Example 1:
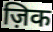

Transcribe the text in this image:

ज़िक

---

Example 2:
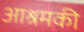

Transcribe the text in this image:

आश्रमकी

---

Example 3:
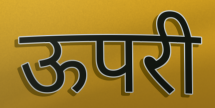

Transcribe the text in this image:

ऊपरी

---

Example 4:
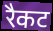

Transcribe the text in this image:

रैकट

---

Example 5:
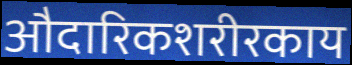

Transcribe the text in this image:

औदारिकशरीरकाय